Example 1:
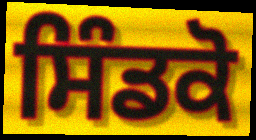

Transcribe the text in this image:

ਸਿੰਡਕੋ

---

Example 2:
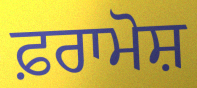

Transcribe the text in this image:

ਫ਼ਰਾਮੋਸ਼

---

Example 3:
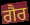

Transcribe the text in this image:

ਗੈਰ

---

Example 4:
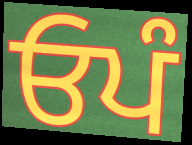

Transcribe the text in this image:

ਓਪੰ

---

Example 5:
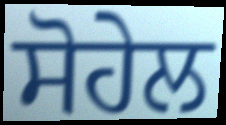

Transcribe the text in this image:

ਸੋਹੇਲ